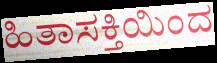
ಹಿತಾಸಕ್ತಿಯಿಂದ